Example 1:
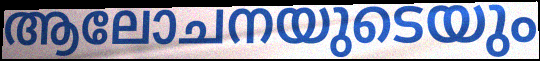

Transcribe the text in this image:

ആലോചനയുടെയും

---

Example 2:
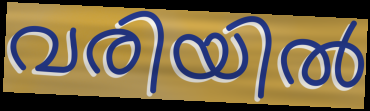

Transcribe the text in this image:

വരിയിൽ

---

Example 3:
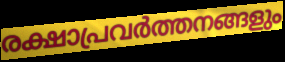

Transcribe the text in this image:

രക്ഷാപ്രവർത്തനങ്ങളും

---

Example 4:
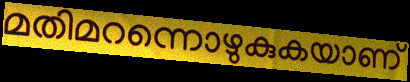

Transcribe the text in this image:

മതിമറന്നൊഴുകുകയാണ്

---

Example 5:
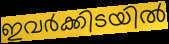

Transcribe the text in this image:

ഇവർക്കിടയിൽ